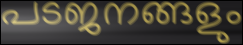
പടജനങ്ങളും